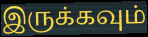
இருக்கவும்